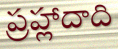
ప్రహ్లాదాది